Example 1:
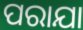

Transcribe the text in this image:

ପରାଯା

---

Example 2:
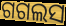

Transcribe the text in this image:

ଗଗଲସ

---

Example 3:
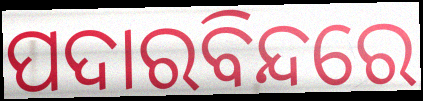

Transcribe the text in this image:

ପଦାରବିନ୍ଦରେ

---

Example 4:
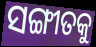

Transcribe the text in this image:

ସଙ୍ଗୀତକୁ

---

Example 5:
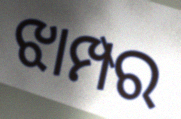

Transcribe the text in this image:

ଝାମ୍ପର